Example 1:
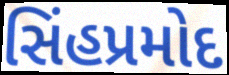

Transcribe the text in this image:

સિંહપ્રમોદ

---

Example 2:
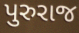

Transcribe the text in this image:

પુરુરાજ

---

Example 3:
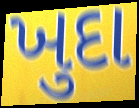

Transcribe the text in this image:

ખુદા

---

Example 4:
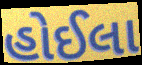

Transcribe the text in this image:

હોઈલા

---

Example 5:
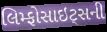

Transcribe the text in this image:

લિમ્ફોસાઇટ્સની